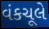
વંકચૂલે